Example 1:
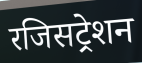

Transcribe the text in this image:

रजिसट्रेशन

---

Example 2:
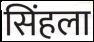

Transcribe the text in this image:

सिंहला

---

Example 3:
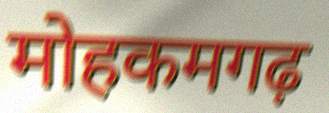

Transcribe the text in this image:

मोहकमगढ़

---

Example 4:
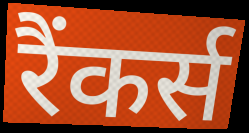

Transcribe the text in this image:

रैंकर्स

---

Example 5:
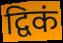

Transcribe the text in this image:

द्विकं